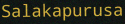
Salakapurusa